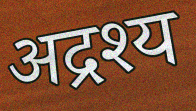
अद्रश्य